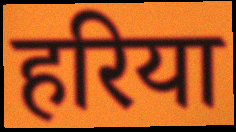
हरिया